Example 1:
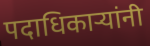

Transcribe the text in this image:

पदाधिकार्‍यांनी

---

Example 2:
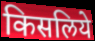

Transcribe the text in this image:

किसलिये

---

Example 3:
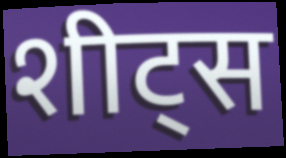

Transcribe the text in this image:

शीट्स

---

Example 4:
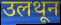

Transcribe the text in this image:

उलथून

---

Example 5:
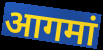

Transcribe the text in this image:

आगमां